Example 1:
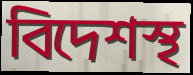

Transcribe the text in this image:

বিদেশস্থ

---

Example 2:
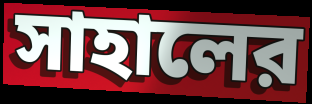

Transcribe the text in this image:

সাহালের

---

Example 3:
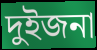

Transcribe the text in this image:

দুইজনা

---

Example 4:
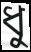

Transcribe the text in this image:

ধু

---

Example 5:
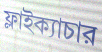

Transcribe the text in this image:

ফ্লাইক্যাচার